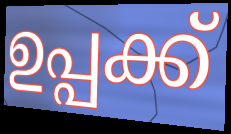
ഉപ്പക്ക്